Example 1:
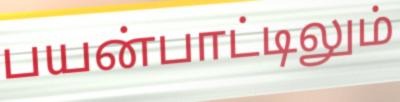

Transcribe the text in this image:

பயன்பாட்டிலும்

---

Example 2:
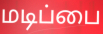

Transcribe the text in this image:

மடிப்பை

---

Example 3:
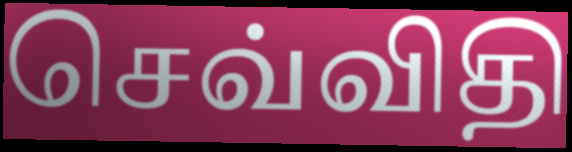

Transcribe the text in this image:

செவ்விதி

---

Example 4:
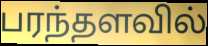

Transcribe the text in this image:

பரந்தளவில்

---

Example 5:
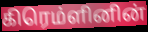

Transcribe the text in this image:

கிரெம்ளினின்